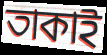
তাকাই